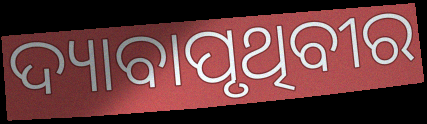
ଦ୍ୟାବାପୃଥିବୀର